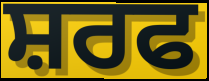
ਸ਼ਰਫ